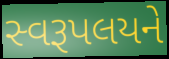
સ્વરૂપલયને